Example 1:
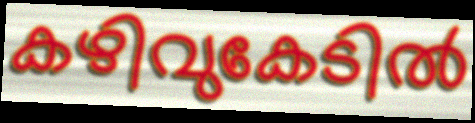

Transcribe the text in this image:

കഴിവുകേടിൽ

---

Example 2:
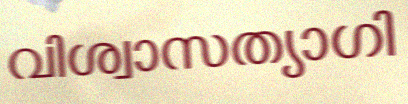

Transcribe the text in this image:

വിശ്വാസത്യാഗി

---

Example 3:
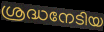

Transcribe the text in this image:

ശ്രദ്ധനേടിയ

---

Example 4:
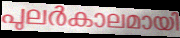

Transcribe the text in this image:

പുലർകാലമായി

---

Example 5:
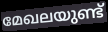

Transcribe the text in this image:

മേഖലയുണ്ട്